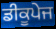
ਡੀਕੂਪੇਜ